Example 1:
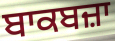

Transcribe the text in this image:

ਬਾਕਬਜ਼ਾ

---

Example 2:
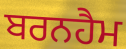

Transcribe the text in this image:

ਬਰਨਹੈਮ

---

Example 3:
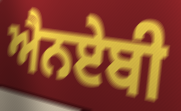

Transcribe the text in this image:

ਐਨਏਬੀ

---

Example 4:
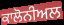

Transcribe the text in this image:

ਕਾਲੋਨੀਅਲ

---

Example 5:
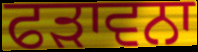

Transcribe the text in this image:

ਫੜਾਵਨਾ